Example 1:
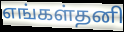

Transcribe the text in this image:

எங்கள்தனி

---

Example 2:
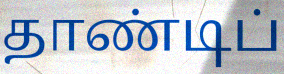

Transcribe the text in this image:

தாண்டிப்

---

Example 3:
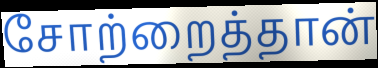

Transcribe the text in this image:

சோற்றைத்தான்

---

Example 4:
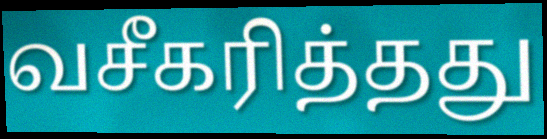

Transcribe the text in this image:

வசீகரித்தது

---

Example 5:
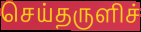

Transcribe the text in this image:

செய்தருளிச்